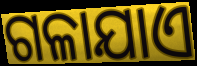
ଗଳାଯାଏ